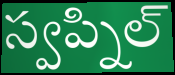
స్వప్నిల్